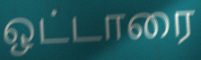
ஒட்டாரை